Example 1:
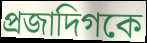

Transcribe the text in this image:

প্রজাদিগকে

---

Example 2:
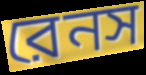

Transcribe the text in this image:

রেনস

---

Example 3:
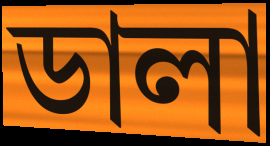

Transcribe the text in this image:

ডালা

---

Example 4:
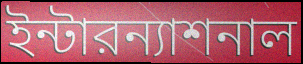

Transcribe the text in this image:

ইন্টারন্যাশনাল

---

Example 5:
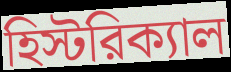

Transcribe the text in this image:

হিস্টরিক্যাল